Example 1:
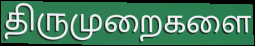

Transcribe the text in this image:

திருமுறைகளை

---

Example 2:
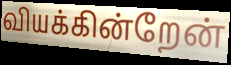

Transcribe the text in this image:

வியக்கின்றேன்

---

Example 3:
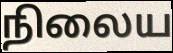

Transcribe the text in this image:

நிலைய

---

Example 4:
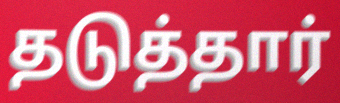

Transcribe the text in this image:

தடுத்தார்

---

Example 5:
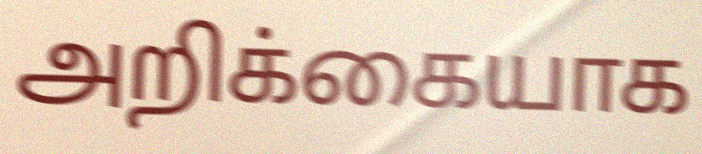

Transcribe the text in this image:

அறிக்கையாக